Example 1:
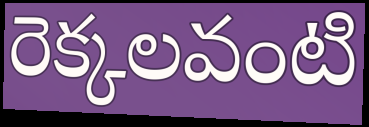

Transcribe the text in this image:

రెక్కలవంటి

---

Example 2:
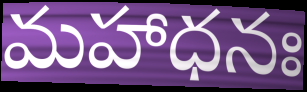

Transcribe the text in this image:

మహాధనః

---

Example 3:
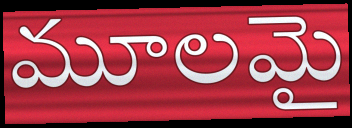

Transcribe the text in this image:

మూలమై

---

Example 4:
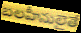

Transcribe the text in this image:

బలహీనులైతే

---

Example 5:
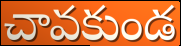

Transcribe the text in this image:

చావకుండ